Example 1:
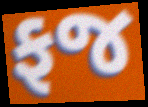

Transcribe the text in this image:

ફજ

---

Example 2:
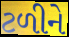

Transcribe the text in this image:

ટળીને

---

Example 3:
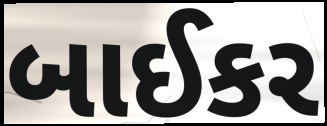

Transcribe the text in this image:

બાઈકર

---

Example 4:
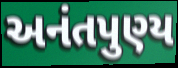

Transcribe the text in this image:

અનંતપુણ્ય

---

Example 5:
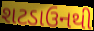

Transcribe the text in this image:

શટડાઉનથી